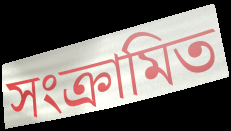
সংক্রামিত